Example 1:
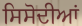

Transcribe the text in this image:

ਸਿਸੋਦੀਆਂ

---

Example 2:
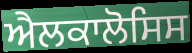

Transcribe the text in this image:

ਐਲਕਾਲੋਸਿਸ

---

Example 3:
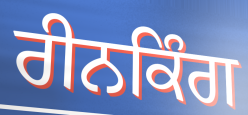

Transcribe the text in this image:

ਰੀਨਕਿੰਗ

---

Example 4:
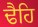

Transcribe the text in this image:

ਢੈਹਿ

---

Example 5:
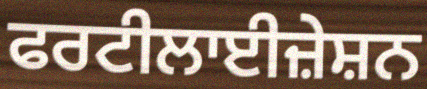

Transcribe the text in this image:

ਫਰਟੀਲਾਈਜ਼ੇਸ਼ਨ